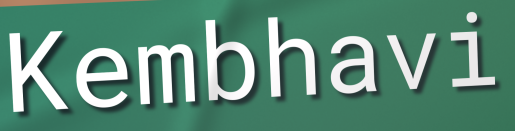
Kembhavi